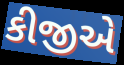
કીજીએ